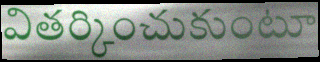
వితర్కించుకుంటూ